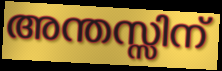
അന്തസ്സിന്